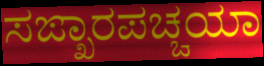
ಸಙ್ಖಾರಪಚ್ಚಯಾ